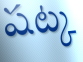
షట్క